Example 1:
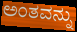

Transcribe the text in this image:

ಅಂತವನ್ನು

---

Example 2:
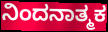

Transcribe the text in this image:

ನಿಂದನಾತ್ಮಕ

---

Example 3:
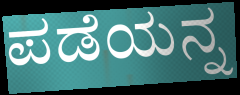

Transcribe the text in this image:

ಪಡೆಯನ್ನ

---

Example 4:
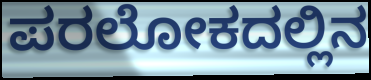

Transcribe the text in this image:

ಪರಲೋಕದಲ್ಲಿನ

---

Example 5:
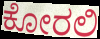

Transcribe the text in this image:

ಕೋರಲಿ